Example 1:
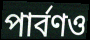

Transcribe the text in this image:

পার্বণও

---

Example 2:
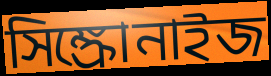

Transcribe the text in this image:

সিঙ্ক্রোনাইজ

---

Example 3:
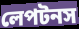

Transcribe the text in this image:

লেপটনস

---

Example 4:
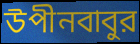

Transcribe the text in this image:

উপীনবাবুর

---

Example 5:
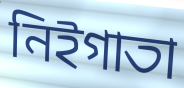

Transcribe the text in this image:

নিইগাতা